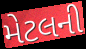
મેટલની